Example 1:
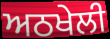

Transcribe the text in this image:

ਅਠਖੇਲੀ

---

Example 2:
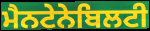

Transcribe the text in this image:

ਮੈਨਟੇਨੇਬਿਲਟੀ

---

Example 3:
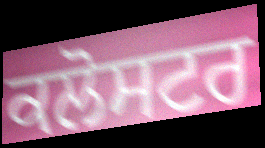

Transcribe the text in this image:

ਕਲੋਸਟਰ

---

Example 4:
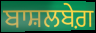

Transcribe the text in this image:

ਬਾਸ਼ਲਬੇਗ਼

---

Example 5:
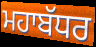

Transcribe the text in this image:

ਮਹਾਬੱਧਰ